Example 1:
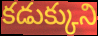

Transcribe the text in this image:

కడుక్కుని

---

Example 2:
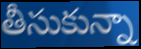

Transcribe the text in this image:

తీసుకున్నా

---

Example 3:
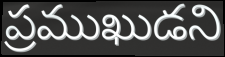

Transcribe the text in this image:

ప్రముఖుడని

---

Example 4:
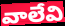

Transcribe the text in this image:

వాలేవి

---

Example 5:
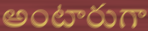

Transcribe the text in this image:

అంటారుగా